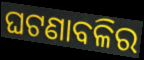
ଘଟଣାବଳିର